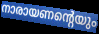
നാരായണന്റെയും